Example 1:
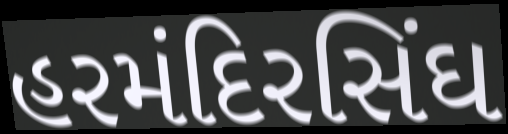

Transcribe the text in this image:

હરમંદિરસિંઘ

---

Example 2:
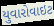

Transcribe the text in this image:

યુવારોવાઇટ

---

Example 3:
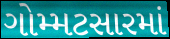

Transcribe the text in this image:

ગોમ્મટસારમાં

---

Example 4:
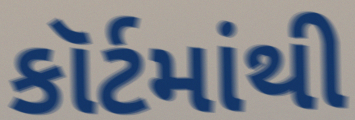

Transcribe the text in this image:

કૉર્ટમાંથી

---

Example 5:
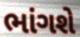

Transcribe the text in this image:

ભાંગશે